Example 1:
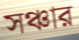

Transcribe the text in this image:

সঞ্চার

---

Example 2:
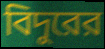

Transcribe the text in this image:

বিদুরের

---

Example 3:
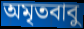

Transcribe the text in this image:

অমৃতবাবু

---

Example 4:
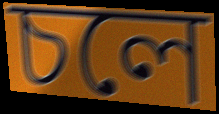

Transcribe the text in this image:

চলে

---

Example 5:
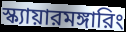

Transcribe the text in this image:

স্ক্যায়ারমঙ্গারিং